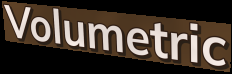
Volumetric